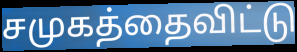
சமுகத்தைவிட்டு